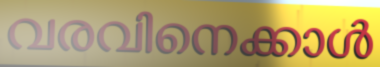
വരവിനെക്കാൾ